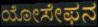
ಯೋಸೇಫನ